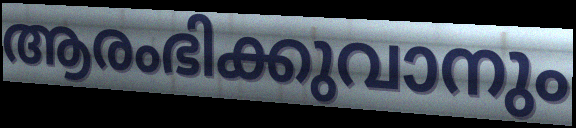
ആരംഭിക്കുവാനും